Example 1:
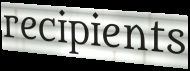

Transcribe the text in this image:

recipients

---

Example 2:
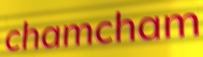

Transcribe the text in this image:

chamcham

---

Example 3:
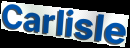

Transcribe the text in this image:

Carlisle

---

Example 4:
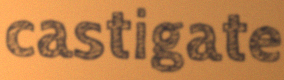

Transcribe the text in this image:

castigate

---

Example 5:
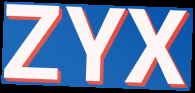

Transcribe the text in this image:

ZYX